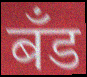
बॅंड